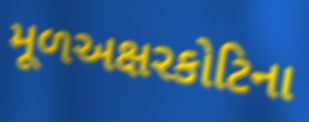
મૂળઅક્ષરકોટિના